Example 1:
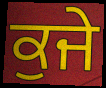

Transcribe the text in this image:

ਕੁਜੇ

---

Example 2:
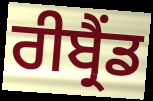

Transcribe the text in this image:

ਰੀਬ੍ਰੈਂਡ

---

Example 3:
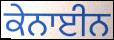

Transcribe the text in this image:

ਕੇਨਾਈਨ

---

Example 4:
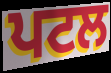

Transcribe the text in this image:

ਪਟਲ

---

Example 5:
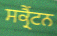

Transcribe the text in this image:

ਸਕ੍ਰੈਂਟਨ